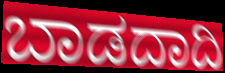
ಬಾಡದಾದಿ